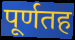
पूर्णतह